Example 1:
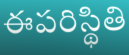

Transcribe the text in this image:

ఈపరిస్థితి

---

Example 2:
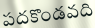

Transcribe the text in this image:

పదకొండవది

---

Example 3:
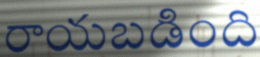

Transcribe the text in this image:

రాయబడింది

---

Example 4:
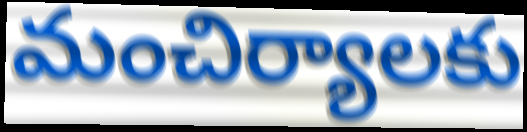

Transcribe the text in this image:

మంచిర్యాలకు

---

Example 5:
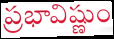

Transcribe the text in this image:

ప్రభావిష్ణుం